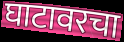
घाटावरचा